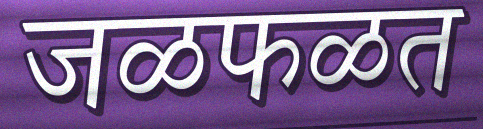
जळफळत